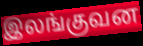
இலங்குவன